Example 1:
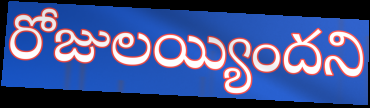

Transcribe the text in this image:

రోజులయ్యిందని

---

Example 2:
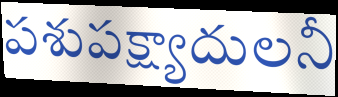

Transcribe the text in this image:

పశుపక్ష్యాదులనీ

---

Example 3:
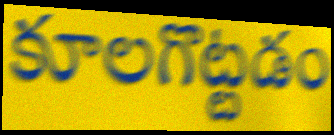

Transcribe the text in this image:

కూలగొట్టడం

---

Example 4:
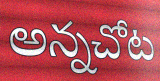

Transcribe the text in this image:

అన్నచోట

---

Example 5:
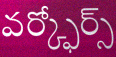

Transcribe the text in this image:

వర్క్ఫోర్స్